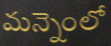
మన్నెంలో